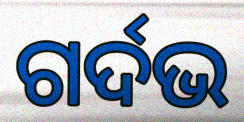
ଗର୍ଦଭ